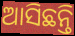
ଆସିଛନ୍ତି